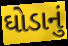
ઘોડાનું